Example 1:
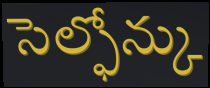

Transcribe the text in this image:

సెల్ఫోన్కు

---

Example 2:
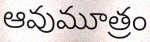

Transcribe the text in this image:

ఆవుమూత్రం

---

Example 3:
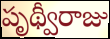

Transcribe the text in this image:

పృథ్వీరాజు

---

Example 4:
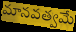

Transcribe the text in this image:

మానవత్వమే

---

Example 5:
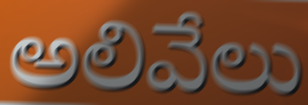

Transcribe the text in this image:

అలివేలు